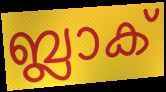
ബ്ലാക്